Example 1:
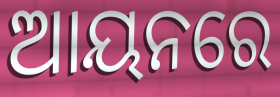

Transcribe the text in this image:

ଆୟନରେ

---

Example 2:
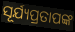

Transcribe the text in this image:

ସୂର୍ଯ୍ୟପ୍ରତାପଙ୍କ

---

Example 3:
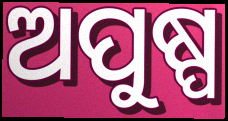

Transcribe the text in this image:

ଅପୁଷ୍ପ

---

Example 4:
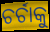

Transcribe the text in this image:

ଚର୍ଚାକୁ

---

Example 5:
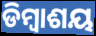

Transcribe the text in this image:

ଡିମ୍ବାଶୟ